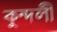
কুন্দলী